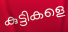
കുട്ടികളെ